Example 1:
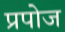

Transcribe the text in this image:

प्रपोज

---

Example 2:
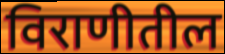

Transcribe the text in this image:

विराणीतील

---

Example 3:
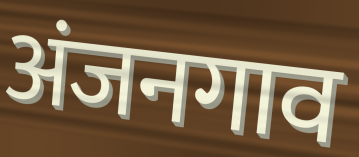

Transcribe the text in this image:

अंजनगाव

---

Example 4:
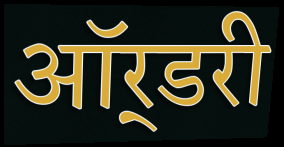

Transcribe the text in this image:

ऑर्डरी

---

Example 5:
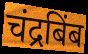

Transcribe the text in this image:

चंद्रबिंब